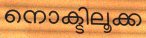
നൊക്ടിലൂക്ക